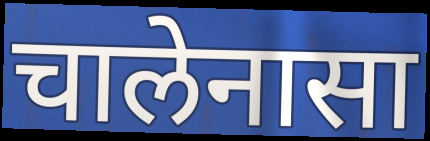
चालेनासा